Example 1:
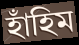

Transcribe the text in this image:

হাঁহিম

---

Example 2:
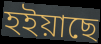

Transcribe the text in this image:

হইয়াছে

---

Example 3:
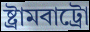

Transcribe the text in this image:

ষ্ট্ৰামবাট্ৰো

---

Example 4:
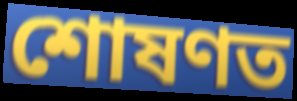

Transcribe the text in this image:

শোষণত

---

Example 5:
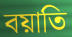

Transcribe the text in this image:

বয়াতি